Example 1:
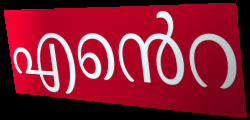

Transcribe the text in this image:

എൻെറ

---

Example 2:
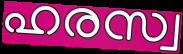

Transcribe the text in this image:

ഹരസ്വ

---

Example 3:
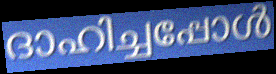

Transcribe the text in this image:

ദാഹിച്ചപ്പോൾ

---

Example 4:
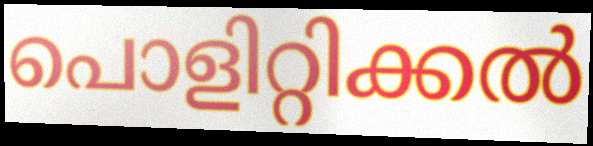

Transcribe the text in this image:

പൊളിറ്റിക്കൽ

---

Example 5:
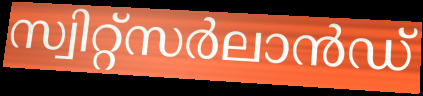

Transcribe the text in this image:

സ്വിറ്റ്സർലാൻഡ്